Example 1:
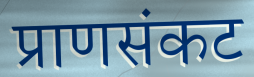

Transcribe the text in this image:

प्राणसंकट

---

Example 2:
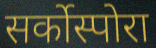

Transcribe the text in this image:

सर्कोस्पोरा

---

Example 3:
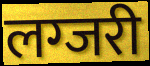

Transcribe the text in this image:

लग्‍जरी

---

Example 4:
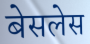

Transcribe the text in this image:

बेसलेस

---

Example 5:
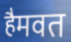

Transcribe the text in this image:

हैमवत